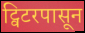
ट्विटरपासून